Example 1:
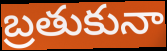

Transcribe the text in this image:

బ్రతుకునా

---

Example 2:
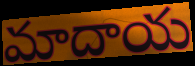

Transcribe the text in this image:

మాదాయ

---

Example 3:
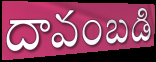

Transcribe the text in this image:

దావంబడి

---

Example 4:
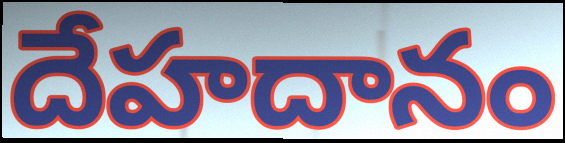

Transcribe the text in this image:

దేహదానం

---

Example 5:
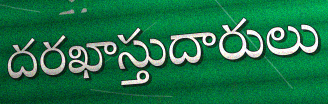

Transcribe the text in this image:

దరఖాస్తుదారులు